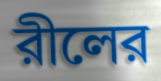
রীলের